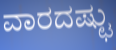
ವಾರದಷ್ಟು